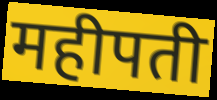
महीपती